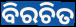
ବିରଚିତ